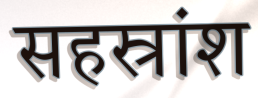
सहस्रांश